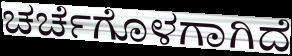
ಚರ್ಚೆಗೊಳಗಾಗಿದೆ